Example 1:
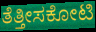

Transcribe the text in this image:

ತೆತ್ತೀಸಕೋಟಿ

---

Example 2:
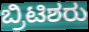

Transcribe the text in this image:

ಬ್ರಿಟಿಶರು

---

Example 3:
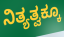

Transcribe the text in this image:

ನಿತ್ಯತ್ವಕ್ಕೂ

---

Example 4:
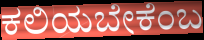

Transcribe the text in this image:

ಕಲಿಯಬೇಕೆಂಬ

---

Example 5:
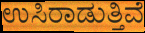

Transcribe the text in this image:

ಉಸಿರಾಡುತ್ತಿವೆ